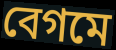
বেগমে